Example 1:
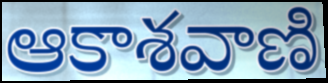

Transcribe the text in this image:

ఆకాశవాణి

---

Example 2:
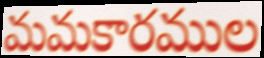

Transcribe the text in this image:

మమకారముల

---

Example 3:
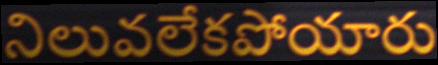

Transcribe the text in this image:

నిలువలేకపోయారు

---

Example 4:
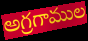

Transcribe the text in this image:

అగ్రగాముల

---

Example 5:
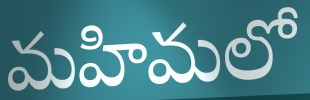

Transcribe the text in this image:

మహిమలో